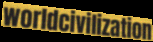
worldcivilization